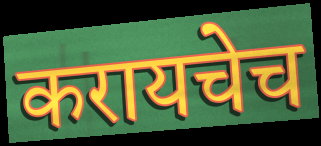
करायचेच